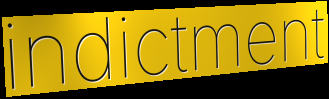
indictment